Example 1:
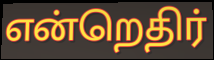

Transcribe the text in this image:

என்றெதிர்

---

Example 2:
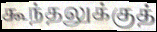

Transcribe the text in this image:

கூந்தலுக்குத்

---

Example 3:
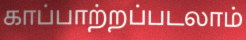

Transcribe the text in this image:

காப்பாற்றப்படலாம்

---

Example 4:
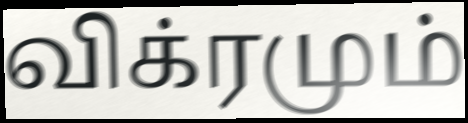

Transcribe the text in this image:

விக்ரமும்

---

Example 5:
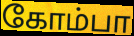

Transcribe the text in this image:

கோம்பா